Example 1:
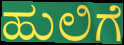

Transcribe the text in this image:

ಹುಲಿಗೆ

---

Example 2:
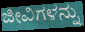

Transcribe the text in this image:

ಜೀವಿಗಳನ್ನು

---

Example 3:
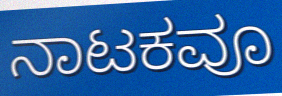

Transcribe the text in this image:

ನಾಟಕವೂ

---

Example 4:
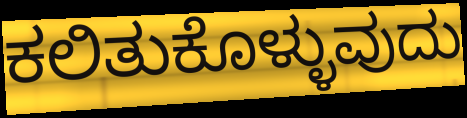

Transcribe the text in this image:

ಕಲಿತುಕೊಳ್ಳುವುದು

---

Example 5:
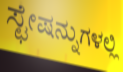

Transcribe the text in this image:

ಸ್ಟೇಷನ್ನುಗಳಲ್ಲಿ